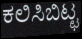
ಕಲಿಸಿಬಿಟ್ಟ